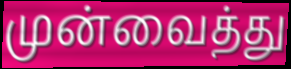
முன்வைத்து